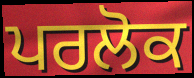
ਪਰਲੋਕ